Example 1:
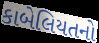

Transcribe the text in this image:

કાબેલિયતનો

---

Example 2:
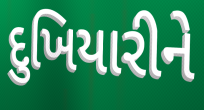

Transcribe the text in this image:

દુખિયારીને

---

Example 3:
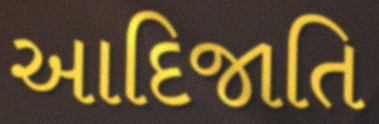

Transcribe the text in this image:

આદિજાતિ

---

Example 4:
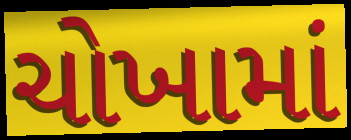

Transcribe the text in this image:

ચોખામાં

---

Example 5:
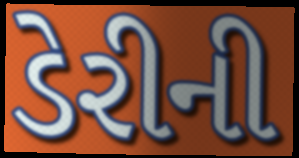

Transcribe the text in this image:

ડેરીની